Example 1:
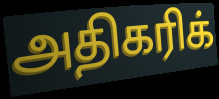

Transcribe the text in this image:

அதிகரிக்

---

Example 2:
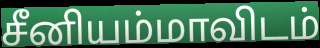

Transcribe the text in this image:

சீனியம்மாவிடம்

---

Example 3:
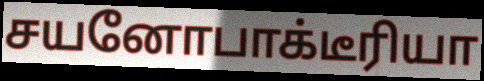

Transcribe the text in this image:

சயனோபாக்டீரியா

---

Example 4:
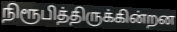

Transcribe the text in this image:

நிரூபித்திருக்கின்றன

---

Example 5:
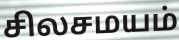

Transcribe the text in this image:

சிலசமயம்